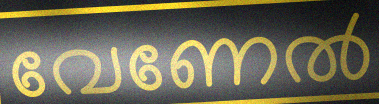
വേണേൽ